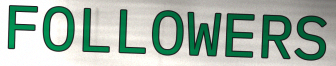
FOLLOWERS